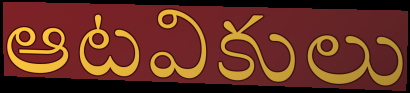
ఆటవికులు